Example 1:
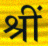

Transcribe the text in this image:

श्रीं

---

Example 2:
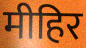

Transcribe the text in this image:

मीहिर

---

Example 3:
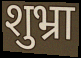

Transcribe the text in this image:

शुभ्रा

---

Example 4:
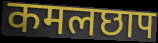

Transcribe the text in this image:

कमलछाप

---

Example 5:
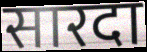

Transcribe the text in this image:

सारदा